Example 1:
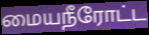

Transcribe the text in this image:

மையநீரோட்ட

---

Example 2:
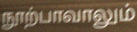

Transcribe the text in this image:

நூற்பாவாலும்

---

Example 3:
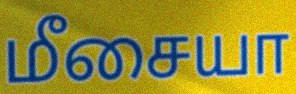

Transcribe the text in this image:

மீசையா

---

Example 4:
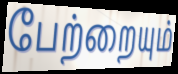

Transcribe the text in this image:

பேற்றையும்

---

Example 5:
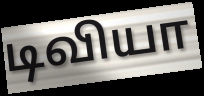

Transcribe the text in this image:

டிவியா